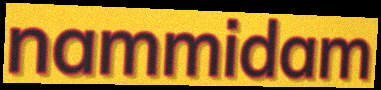
nammidam